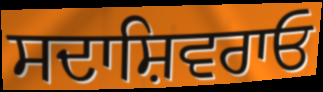
ਸਦਾਸ਼ਿਵਰਾਓ